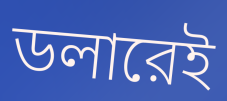
ডলারেই